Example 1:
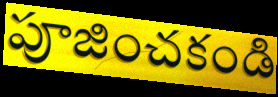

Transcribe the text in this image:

పూజించకండి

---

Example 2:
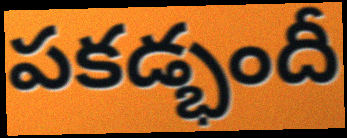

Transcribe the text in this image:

పకడ్భందీ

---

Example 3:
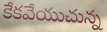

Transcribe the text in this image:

కేకవేయుచున్న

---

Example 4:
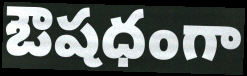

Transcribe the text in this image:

ఔషధంగా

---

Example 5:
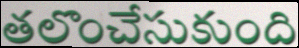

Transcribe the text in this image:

తలొంచేసుకుంది